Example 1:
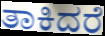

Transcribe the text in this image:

ತಾಕಿದರೆ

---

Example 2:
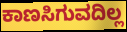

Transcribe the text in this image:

ಕಾಣಸಿಗುವದಿಲ್ಲ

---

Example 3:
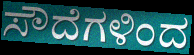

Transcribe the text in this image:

ಸೌದೆಗಳಿಂದ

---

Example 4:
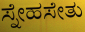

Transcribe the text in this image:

ಸ್ನೇಹಸೇತು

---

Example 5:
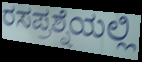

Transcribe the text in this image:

ರಸಪ್ರಶ್ನೆಯಲ್ಲಿ